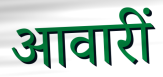
आवारीं